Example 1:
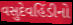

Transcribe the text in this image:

વસુદેવહિંડીનો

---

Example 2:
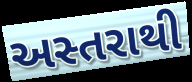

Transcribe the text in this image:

અસ્તરાથી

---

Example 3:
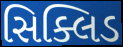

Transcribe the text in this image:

સિક્લિડ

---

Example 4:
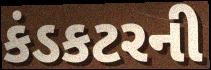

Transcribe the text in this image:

કંડકટરની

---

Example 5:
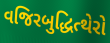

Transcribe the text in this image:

વજિરબુદ્ધિત્થેરો